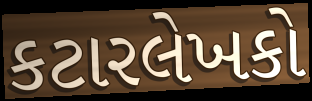
કટારલેખકો